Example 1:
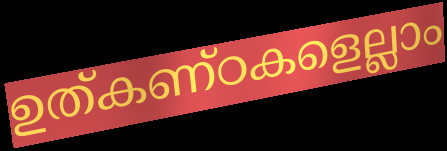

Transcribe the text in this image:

ഉത്കണ്ഠകളെല്ലാം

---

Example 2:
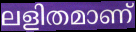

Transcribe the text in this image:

ലളിതമാണ്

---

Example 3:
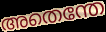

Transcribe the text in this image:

അതെന്തേ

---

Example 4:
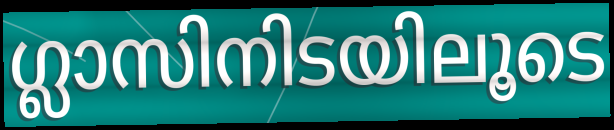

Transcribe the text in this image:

ഗ്ലാസിനിടയിലൂടെ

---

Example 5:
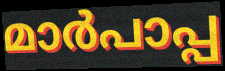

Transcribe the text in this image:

മാർപാപ്പ